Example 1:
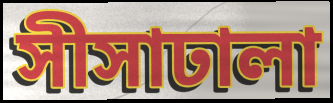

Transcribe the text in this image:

সীসাঢালা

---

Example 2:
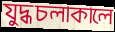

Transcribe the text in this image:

যুদ্ধচলাকালে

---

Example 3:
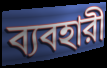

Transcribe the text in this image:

ব্যবহারী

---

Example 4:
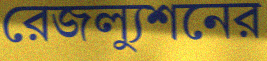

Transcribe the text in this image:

রেজল্যুশনের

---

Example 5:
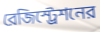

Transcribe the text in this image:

রেজিস্ট্রেশনের